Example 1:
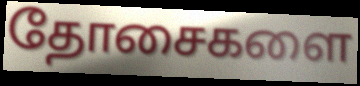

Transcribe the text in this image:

தோசைகளை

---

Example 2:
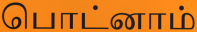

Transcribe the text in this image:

பொட்னாம்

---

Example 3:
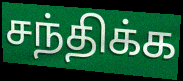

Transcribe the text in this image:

சந்திக்க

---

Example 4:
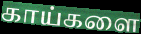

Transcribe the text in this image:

காய்களை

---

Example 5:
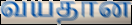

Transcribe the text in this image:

வயதான